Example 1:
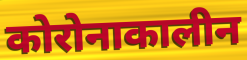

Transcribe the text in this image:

कोरोनाकालीन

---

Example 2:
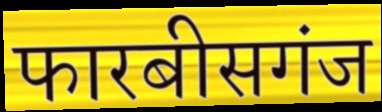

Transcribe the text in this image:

फारबीसगंज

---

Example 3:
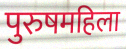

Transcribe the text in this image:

पुरुषमहिला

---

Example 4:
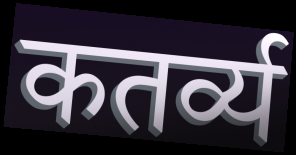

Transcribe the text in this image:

कतर्व्य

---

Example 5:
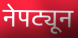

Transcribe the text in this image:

नेपट्यून